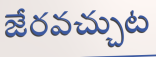
జేరవచ్చుట